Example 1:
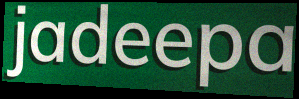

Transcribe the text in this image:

jadeepa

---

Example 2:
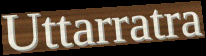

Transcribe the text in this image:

Uttarratra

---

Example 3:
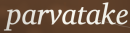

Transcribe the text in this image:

parvatake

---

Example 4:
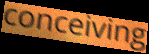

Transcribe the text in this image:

conceiving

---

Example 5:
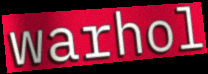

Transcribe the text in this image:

warhol